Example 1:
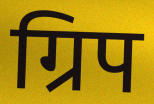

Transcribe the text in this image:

ग्रिप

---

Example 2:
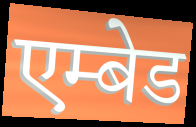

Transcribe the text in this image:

एम्बेड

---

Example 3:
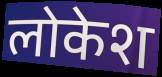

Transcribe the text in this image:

लोकेश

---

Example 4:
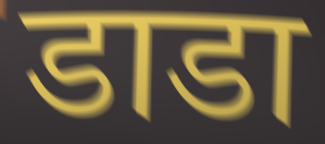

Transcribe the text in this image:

डाडा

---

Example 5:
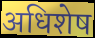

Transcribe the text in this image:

अधिशेष